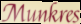
Munkres